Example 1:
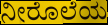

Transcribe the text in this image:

ನೀರೊಲೆಯ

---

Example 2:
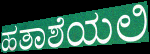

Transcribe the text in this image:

ಹತಾಶೆಯಲಿ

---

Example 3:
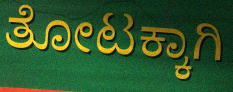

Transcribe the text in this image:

ತೋಟಕ್ಕಾಗಿ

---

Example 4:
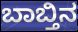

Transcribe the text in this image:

ಬಾಬ್ತಿನ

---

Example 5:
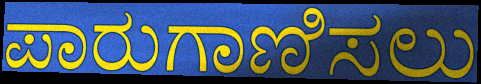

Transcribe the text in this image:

ಪಾರುಗಾಣಿಸಲು